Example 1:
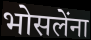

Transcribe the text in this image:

भोसलेंना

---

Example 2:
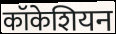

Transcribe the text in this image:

कॉकेशियन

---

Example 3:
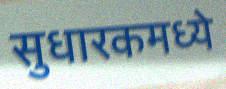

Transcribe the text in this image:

सुधारकमध्ये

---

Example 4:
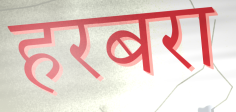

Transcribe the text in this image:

हरबरा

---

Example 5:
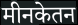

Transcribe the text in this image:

मीनकेतन